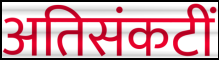
अतिसंकटीं